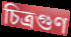
চিত্রগুণ